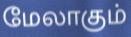
மேலாகும்